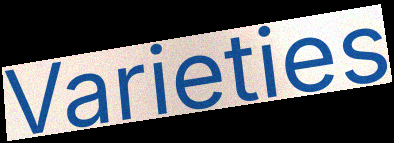
Varieties